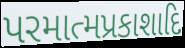
પરમાત્મપ્રકાશાદિ